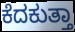
ಕೆದಕುತ್ತಾ